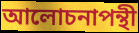
আলোচনাপন্থী